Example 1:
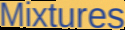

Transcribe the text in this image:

Mixtures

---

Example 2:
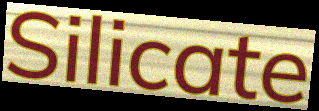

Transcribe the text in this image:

Silicate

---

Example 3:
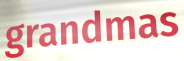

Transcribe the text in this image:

grandmas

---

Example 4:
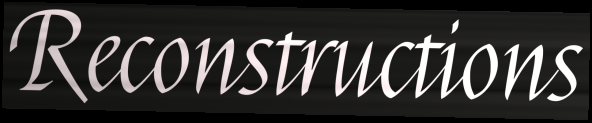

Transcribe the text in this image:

Reconstructions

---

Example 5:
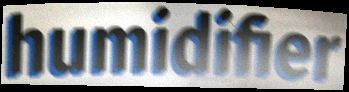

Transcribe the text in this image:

humidifier